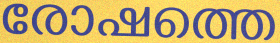
രോഷത്തെ